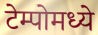
टेम्पोमध्ये